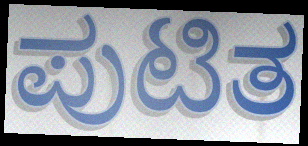
ಪುಟಿತ